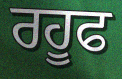
ਰਹੂਫ